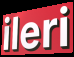
ileri